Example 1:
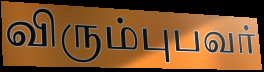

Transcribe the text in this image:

விரும்புபவர்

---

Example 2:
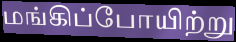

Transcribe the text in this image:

மங்கிப்போயிற்று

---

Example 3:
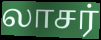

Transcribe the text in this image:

லாசர்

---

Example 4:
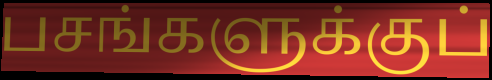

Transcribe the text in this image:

பசங்களுக்குப்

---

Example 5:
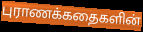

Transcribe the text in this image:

புராணக்கதைகளின்